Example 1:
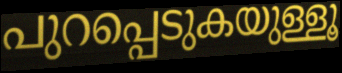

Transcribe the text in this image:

പുറപ്പെടുകയുള്ളൂ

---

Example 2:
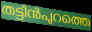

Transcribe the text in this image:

തട്ടിൻപുറത്തെ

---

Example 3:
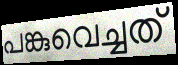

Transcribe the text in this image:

പങ്കുവെച്ചത്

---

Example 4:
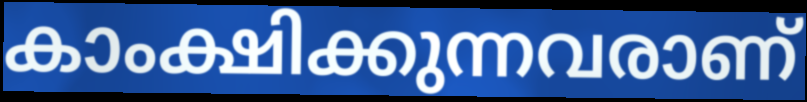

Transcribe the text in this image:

കാംക്ഷിക്കുന്നവരാണ്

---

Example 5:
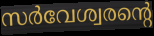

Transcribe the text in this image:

സർവേശ്വരന്റെ